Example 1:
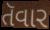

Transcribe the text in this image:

તૅવાર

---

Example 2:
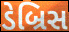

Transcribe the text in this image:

ડેબ્રિસ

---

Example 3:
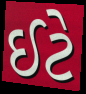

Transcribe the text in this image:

ઈટે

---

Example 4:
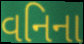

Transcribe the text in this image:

વનિના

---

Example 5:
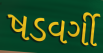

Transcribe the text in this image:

ષડવર્ગી